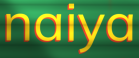
naiya